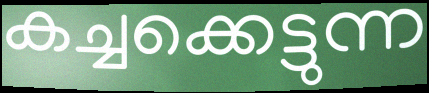
കച്ചക്കെട്ടുന്ന